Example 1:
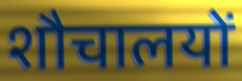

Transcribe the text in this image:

शौचालयों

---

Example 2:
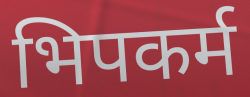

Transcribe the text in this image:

भिपकर्म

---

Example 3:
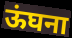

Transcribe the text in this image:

ऊंघना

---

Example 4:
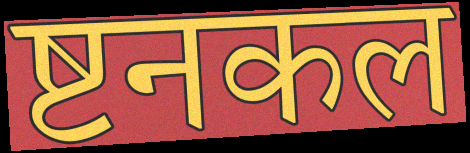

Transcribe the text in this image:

ष्टनकल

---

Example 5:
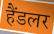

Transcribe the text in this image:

हैंडलर